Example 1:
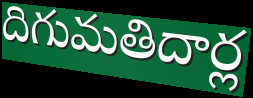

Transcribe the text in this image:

దిగుమతిదార్ల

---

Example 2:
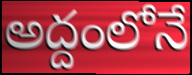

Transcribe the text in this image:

అద్దంలోనే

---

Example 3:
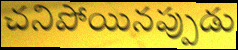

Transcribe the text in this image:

చనిపోయినప్పుడు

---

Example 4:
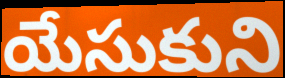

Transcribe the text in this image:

యేసుకుని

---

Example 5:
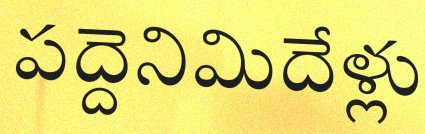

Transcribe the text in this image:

పద్దెనిమిదేళ్లు